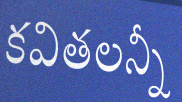
కవితలన్నీ